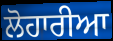
ਲੋਹਾਰੀਆ